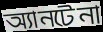
অ্যানটেনা